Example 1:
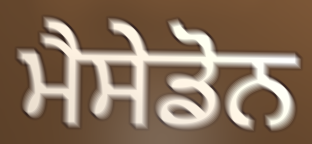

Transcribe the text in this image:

ਮੈਸੇਡੋਨ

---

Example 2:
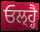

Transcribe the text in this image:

ਓਲ੍ਹ੍ਹੈ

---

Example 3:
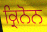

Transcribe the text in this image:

ਕ੍ਰਿਨੋਨ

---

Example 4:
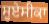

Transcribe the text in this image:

ਸੂਏਸੀਕਾ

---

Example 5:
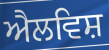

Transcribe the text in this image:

ਐਲਵਿਸ਼